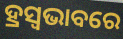
ହ୍ରସ୍ୱଭାବରେ